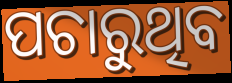
ପଚାରୁଥିବ